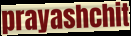
prayashchit